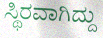
ಸ್ಥಿರವಾಗಿದ್ದು